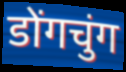
डोंगचुंग